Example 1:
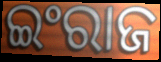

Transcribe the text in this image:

ଇଂରାଜ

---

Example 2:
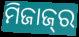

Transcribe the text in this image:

ମିଜାଜ୍‌ର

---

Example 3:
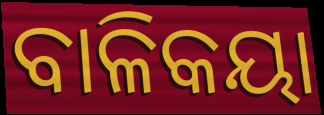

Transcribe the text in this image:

ବାଳିକୟା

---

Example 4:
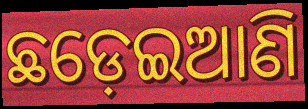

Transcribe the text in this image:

ଛଡ଼େଇଆଣି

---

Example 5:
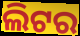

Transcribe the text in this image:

ଲିଟର